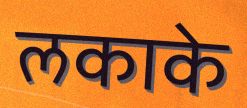
लकाके